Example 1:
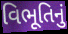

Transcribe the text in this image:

વિભૂતિનું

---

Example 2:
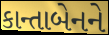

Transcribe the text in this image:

કાન્તાબેનને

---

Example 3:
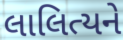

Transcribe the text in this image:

લાલિત્યને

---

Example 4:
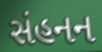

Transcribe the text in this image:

સંહનન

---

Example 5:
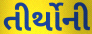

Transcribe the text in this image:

તીર્થોની